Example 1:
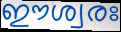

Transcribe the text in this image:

ഈശ്വരഃ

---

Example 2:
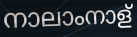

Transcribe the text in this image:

നാലാംനാള്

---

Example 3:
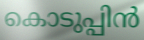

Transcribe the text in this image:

കൊടുപ്പിൻ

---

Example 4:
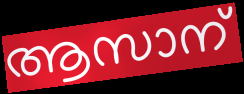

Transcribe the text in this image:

ആസാന്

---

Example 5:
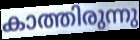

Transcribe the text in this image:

കാത്തിരുന്നു